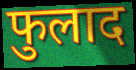
फुलाद